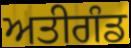
ਅਤੀਗੰਡ